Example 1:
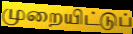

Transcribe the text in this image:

முறையிட்டுப்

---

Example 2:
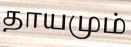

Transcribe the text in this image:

தாயமும்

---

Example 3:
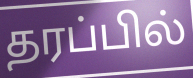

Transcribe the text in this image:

தரப்பில்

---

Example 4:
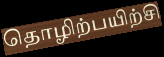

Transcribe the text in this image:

தொழிற்பயிற்சி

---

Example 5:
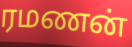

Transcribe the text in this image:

ரமணன்